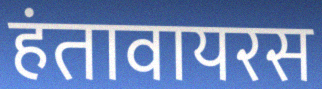
हंतावायरस